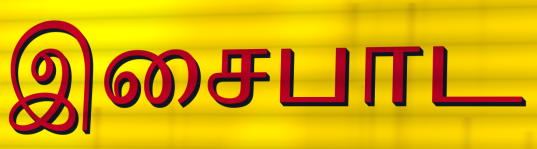
இசைபாட